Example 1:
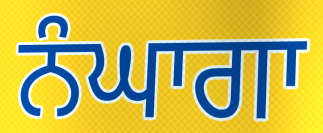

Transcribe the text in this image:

ਨੰਘਾਗਾ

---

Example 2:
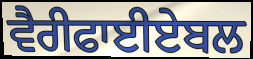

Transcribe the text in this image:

ਵੈਰੀਫਾਈਏਬਲ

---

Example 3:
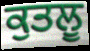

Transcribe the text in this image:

ਕੁਤਲੂ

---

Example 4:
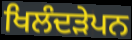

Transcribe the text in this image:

ਖਿਲੰਦੜੇਪਨ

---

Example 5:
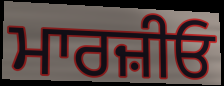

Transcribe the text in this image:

ਮਾਰਜ਼ੀਓ